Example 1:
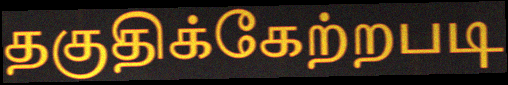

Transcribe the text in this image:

தகுதிக்கேற்றபடி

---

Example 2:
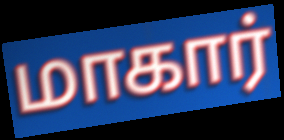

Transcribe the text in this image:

மாகார்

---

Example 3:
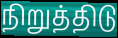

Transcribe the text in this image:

நிறுத்திடு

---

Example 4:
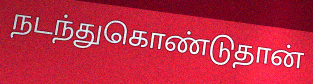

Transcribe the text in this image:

நடந்துகொண்டுதான்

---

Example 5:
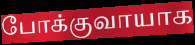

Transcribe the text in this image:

போக்குவாயாக